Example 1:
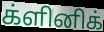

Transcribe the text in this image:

க்ளினிக்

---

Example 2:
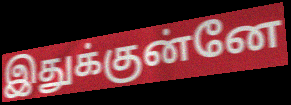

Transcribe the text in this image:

இதுக்குன்னே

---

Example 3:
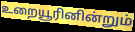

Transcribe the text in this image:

உறையூரினின்றும்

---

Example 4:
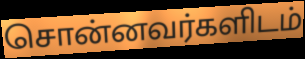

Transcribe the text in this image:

சொன்னவர்களிடம்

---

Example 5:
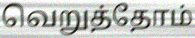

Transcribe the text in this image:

வெறுத்தோம்